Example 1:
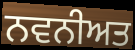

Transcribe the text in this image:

ਨਵਨੀਅਤ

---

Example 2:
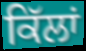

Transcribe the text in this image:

ਕਿੱਲਾਂ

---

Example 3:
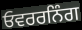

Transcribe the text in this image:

ਓਵਰਰਨਿੰਗ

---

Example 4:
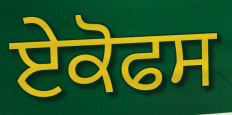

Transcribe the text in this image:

ਏਕੋਫਸ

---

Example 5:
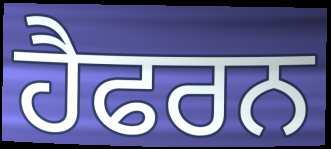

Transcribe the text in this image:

ਹੈਫਰਨ